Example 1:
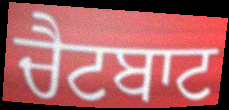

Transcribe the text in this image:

ਚੈਟਬਾਟ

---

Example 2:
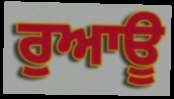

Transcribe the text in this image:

ਰੁਆਊ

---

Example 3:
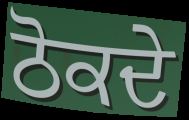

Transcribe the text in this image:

ਠੋਕਦੇ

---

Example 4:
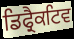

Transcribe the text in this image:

ਡਿਫ੍ਰੈਕਟਿਵ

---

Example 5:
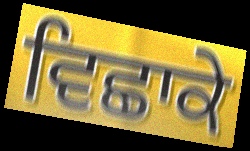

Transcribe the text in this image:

ਵਿਛਾਕੇ